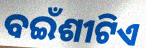
ବଇଁଶୀଟିଏ